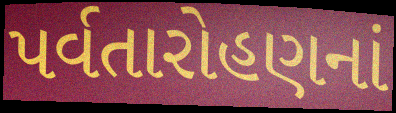
પર્વતારોહણનાં